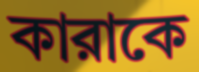
কারাকে